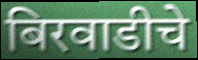
बिरवाडीचे